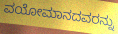
ವಯೋಮಾನದವರನ್ನು